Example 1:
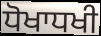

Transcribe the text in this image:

ਧੋਖਾਧਖੀ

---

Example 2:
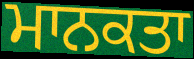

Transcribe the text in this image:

ਮਾਨਕਤਾ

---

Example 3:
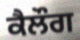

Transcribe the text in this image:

ਕੈਲੌਗ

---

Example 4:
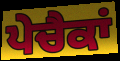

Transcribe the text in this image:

ਪੇਚੈਕਾਂ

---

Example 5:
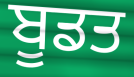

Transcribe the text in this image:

ਬੂਡਤ